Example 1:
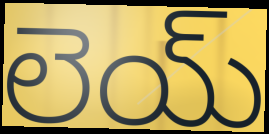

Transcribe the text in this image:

లెయ్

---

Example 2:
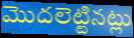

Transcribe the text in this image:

మొదలెట్టినట్లు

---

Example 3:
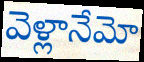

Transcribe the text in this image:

వెళ్లానేమో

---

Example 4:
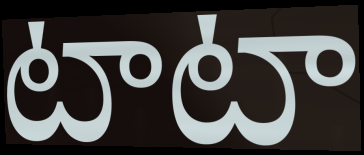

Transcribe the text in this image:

టాటా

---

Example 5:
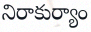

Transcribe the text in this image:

నిరాకుర్యాం